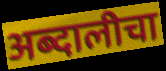
अब्दालीचा